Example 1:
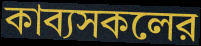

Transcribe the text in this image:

কাব্যসকলের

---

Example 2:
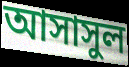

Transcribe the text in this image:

আসাসুল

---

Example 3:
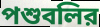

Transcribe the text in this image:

পশুবলির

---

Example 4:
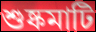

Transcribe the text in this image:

শুষ্কমাটি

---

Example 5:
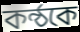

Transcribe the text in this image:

কন্ঠকে